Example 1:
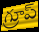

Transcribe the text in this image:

గ్రూప్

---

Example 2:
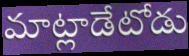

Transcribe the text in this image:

మాట్లాడేటోడు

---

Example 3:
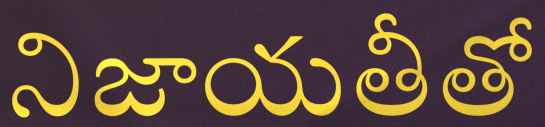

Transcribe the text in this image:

నిజాయతీతో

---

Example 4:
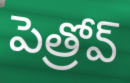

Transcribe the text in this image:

పెత్రోవ్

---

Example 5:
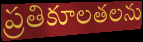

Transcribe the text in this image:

ప్రతికూలతలను